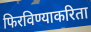
फिरविण्याकरिता